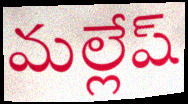
మల్లేష్